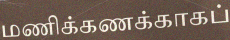
மணிக்கணக்காகப்